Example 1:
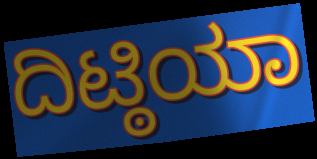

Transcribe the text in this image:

ದಿಟ್ಠಿಯಾ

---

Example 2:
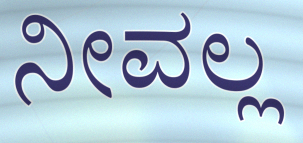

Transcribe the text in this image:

ನೀವಲ್ಲ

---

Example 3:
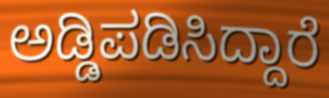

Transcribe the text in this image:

ಅಡ್ಡಿಪಡಿಸಿದ್ದಾರೆ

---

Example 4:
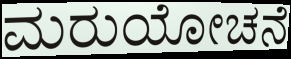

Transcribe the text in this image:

ಮರುಯೋಚನೆ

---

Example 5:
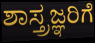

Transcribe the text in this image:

ಶಾಸ್ತ್ರಜ್ಞರಿಗೆ